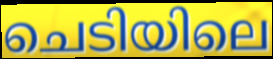
ചെടിയിലെ